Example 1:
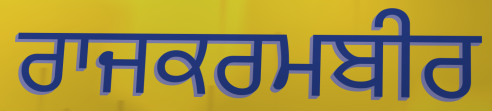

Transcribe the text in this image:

ਰਾਜਕਰਮਬੀਰ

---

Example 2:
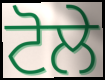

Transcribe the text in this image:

ਟੋਲੇ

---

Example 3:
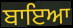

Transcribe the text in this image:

ਬਾਇਆ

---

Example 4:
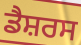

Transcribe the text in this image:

ਡੈਸ਼ਰਸ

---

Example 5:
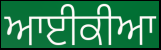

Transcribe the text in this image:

ਆਈਕੀਆ